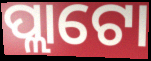
ପ୍ଲାଟୋ